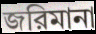
জরিমানা